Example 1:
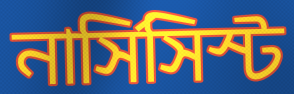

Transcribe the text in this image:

নার্সিসিস্ট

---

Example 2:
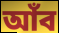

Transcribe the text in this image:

আঁব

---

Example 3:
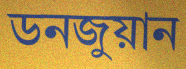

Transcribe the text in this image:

ডনজুয়ান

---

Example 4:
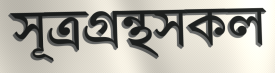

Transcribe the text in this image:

সূত্রগ্রন্থসকল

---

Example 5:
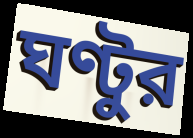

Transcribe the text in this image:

ঘণ্টুর